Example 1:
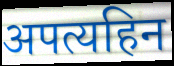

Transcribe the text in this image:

अपत्यहिन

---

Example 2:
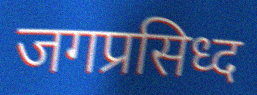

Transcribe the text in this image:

जगप्रसिध्द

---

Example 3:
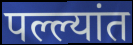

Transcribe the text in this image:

पल्ल्यांत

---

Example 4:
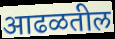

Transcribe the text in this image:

आढळतील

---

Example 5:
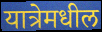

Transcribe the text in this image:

यात्रेमधील